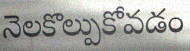
నెలకొల్పుకోవడం